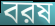
বরষ